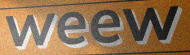
weew